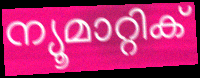
ന്യൂമാറ്റിക്